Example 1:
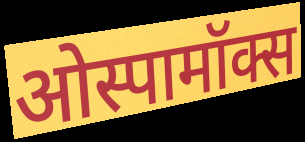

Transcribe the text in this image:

ओस्पामॉक्स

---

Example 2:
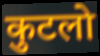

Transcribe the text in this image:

कुटलो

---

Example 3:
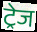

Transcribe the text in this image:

ट्रेज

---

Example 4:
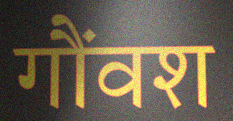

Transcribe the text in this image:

गौंवश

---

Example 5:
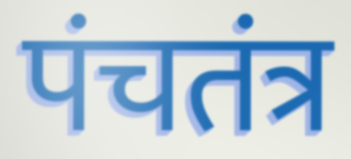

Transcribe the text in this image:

पंचतंत्र